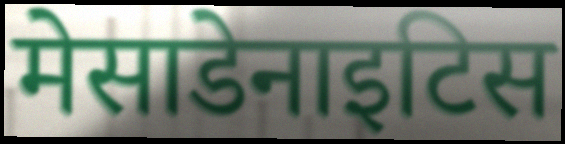
मेसाडेनाइटिस